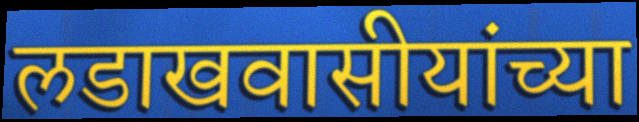
लडाखवासीयांच्या